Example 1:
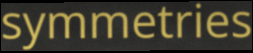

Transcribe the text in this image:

symmetries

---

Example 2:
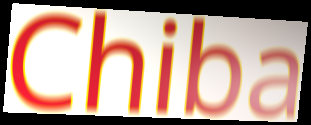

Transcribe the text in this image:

Chiba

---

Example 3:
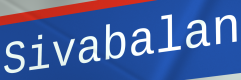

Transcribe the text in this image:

Sivabalan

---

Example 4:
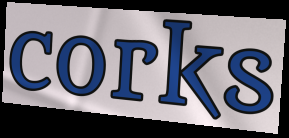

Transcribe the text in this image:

corks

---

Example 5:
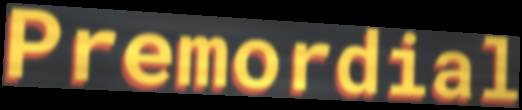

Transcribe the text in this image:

Premordial